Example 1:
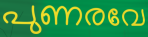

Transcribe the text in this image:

പുണരവേ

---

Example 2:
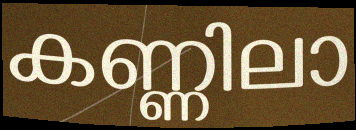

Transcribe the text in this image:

കണ്ണിലാ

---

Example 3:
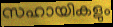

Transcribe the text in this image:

സഹായികളും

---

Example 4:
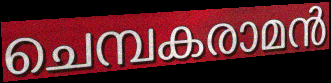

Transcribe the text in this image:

ചെമ്പകരാമൻ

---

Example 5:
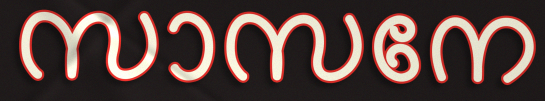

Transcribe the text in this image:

സാസനേ